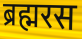
ब्रह्मरस